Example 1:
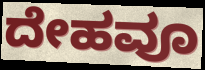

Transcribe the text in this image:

ದೇಹವೂ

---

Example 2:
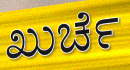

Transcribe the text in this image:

ಖುರ್ಚೆ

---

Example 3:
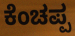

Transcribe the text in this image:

ಕೆಂಚಪ್ಪ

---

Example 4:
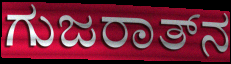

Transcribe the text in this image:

ಗುಜರಾತ್‍ನ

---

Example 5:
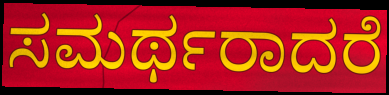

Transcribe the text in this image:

ಸಮರ್ಥರಾದರೆ